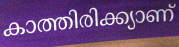
കാത്തിരിക്ക്യാണ്